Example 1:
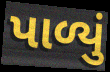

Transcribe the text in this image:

પાળ્યું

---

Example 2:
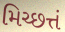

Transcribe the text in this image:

મિચ્છત્તં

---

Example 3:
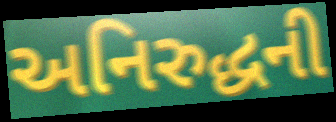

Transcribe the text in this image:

અનિરુદ્ધની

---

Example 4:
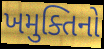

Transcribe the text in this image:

ખમુક્તિનો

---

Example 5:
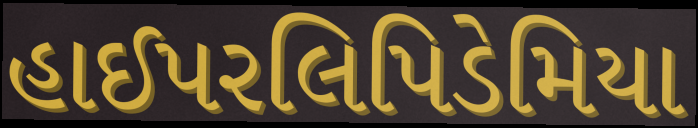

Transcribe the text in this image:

હાઈપરલિપિડેમિયા